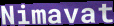
Nimavat